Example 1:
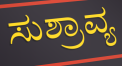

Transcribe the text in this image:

ಸುಶ್ರಾವ್ಯ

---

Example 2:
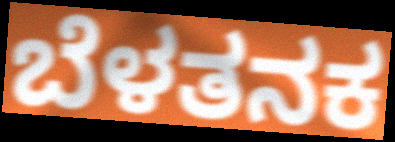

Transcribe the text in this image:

ಬೆಳತನಕ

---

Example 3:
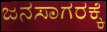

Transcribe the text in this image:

ಜನಸಾಗರಕ್ಕೆ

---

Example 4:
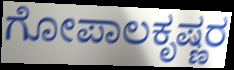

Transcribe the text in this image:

ಗೋಪಾಲಕೃಷ್ಣರ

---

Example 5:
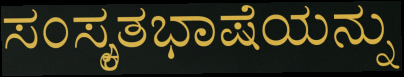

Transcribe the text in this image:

ಸಂಸ್ಕೃತಭಾಷೆಯನ್ನು